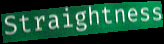
Straightness